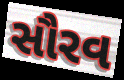
સૌરવ